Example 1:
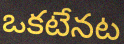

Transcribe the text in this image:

ఒకటేనట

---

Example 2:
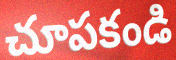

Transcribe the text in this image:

చూపకండి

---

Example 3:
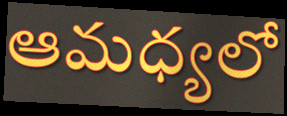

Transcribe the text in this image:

ఆమధ్యలో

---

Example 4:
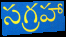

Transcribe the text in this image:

సగ్రహా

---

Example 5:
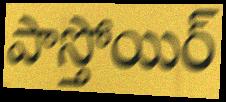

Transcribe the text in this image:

పాస్తోయిర్